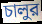
চালুর